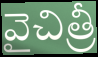
వైచిత్రీ